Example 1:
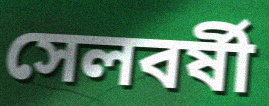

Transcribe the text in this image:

সেলবর্ষী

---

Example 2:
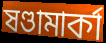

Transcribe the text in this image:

ষণ্ডামার্কা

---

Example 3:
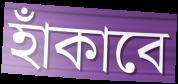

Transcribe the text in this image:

হাঁকাবে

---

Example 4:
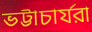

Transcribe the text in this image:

ভট্টাচার্যরা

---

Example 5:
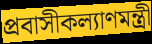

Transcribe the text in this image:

প্রবাসীকল্যাণমন্ত্রী